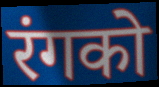
रंगको